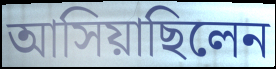
আসিয়াছিলেন